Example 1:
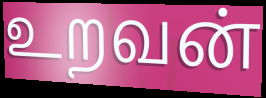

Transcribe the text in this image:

உறவன்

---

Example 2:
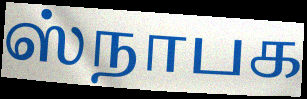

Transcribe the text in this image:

ஸ்நாபக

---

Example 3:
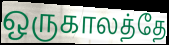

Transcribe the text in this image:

ஒருகாலத்தே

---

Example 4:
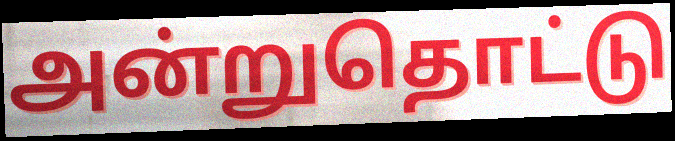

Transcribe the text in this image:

அன்றுதொட்டு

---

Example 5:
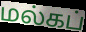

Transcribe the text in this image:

மல்கப்